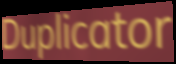
Duplicator